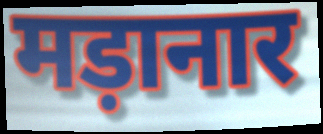
मड़ानार